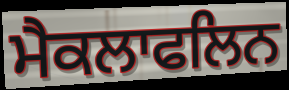
ਮੈਕਲਾਫਲਿਨ